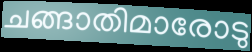
ചങ്ങാതിമാരോടു